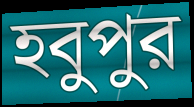
হবুপুর